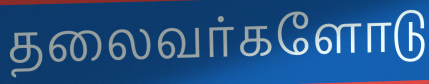
தலைவர்களோடு